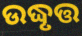
ଉଦ୍ଧୃତ୍ତ